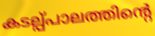
കടല്പ്പാലത്തിന്റെ